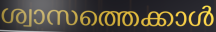
ശ്വാസത്തെക്കാൾ